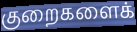
குறைகளைக்